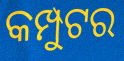
କମ୍ପୁଟର